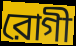
রোগী